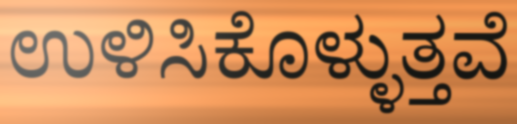
ಉಳಿಸಿಕೊಳ್ಳುತ್ತವೆ